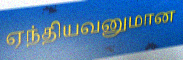
ஏந்தியவனுமான